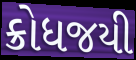
ક્રોધજયી